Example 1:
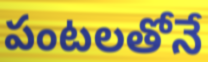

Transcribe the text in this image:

పంటలతోనే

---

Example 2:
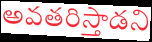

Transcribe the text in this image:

అవతరిస్తాడని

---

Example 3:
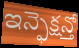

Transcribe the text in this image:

ఇన్ఫెక్షన్తో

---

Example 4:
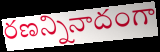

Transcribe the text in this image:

రణన్నినాదంగా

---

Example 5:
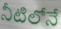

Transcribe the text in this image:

నీటిలోనే